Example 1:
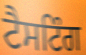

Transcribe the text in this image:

ਟੈਸਟਿੰਗ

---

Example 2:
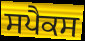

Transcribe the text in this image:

ਸਪੈਕਸ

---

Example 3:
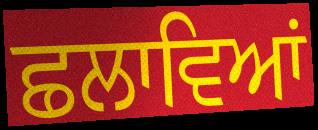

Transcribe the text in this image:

ਛਲਾਵਿਆਂ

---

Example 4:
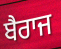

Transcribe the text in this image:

ਬੈਰਾਜ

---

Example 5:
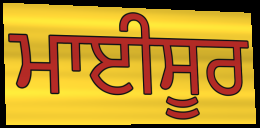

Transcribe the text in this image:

ਮਾਈਸੂਰ